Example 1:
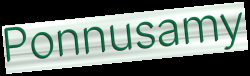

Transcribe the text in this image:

Ponnusamy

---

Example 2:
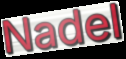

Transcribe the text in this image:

Nadel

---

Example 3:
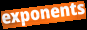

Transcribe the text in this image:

exponents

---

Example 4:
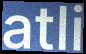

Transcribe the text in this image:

atli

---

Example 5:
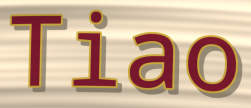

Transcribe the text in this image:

Tiao